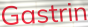
Gastrin